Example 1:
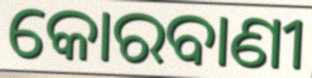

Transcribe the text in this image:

କୋରବାଣୀ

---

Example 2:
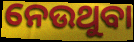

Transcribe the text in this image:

ନେଉଥୁବା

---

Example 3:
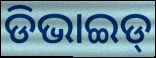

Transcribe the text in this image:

ଡିଭାଇଡ୍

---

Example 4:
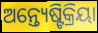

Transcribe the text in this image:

ଅନ୍ତ୍ୟେଷ୍ଟିକ୍ରିୟା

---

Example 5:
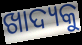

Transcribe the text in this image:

ଖାଦ୍ୟକୁ